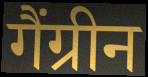
गैंग्रीन